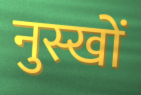
नुस्खों